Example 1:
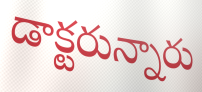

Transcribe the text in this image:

డాక్టరున్నారు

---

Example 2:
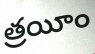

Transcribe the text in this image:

త్రయీం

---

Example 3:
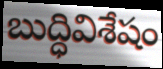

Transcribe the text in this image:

బుద్ధివిశేషం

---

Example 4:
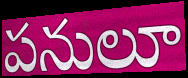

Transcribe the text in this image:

పనులూ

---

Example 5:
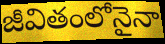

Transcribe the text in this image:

జీవితంలోనైనా